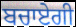
ਬਚਾਏਗੀ